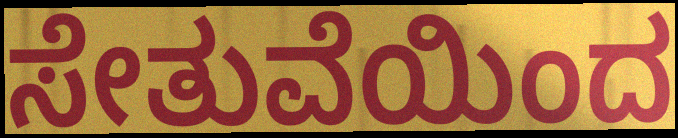
ಸೇತುವೆಯಿಂದ